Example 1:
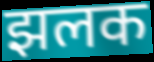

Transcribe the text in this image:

झलक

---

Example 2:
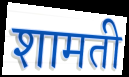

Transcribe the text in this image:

शामती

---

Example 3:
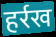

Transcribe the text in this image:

हर्रख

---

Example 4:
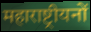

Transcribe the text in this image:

महाराष्ट्रीयनों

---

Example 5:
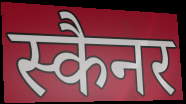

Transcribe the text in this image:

स्कैनर